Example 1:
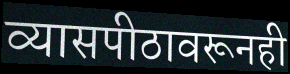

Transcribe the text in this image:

व्यासपीठावरूनही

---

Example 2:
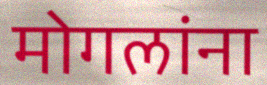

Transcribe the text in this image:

मोगलांना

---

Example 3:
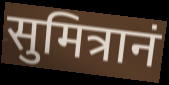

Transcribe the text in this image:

सुमित्रानं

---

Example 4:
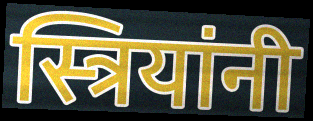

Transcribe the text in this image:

स्त्रियांनी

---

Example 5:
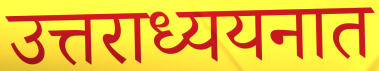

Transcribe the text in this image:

उत्तराध्ययनात